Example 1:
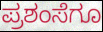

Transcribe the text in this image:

ಪ್ರಶಂಸೆಗೂ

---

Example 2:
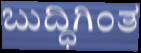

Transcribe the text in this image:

ಬುದ್ಧಿಗಿಂತ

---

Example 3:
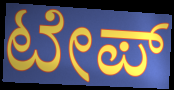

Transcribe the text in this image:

ಟೇಪ್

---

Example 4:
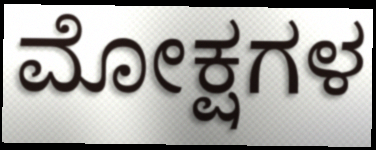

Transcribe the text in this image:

ಮೋಕ್ಷಗಳ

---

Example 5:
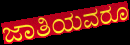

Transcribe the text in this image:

ಜಾತಿಯವರೂ